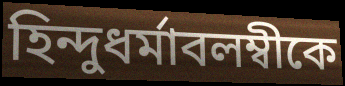
হিন্দুধর্মাবলম্বীকে